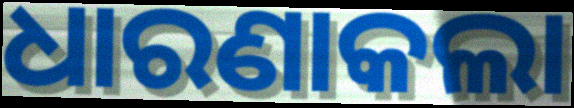
ଧାରଣାକଲା